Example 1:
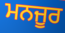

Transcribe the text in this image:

ਮਨਜੂਰ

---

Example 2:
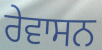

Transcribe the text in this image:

ਰੇਵਾਸਨ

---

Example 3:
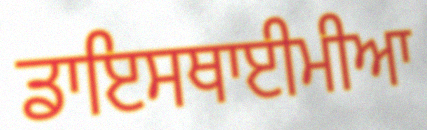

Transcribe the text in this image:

ਡਾਇਸਥਾਈਮੀਆ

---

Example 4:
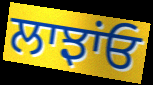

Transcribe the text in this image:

ਲਾਝਾਂਓ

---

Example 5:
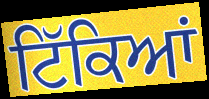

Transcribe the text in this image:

ਟਿੱਕਿਆਂ